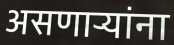
असणाऱ्यांना